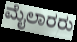
ಮೈಲಾರರು